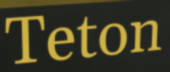
Teton